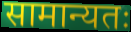
सामान्यतः